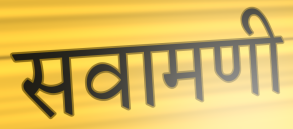
सवामणी